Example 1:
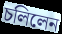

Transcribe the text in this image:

চলিলেন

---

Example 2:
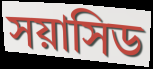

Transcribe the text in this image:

সয়াসিড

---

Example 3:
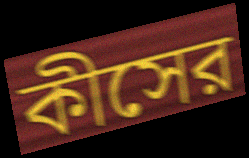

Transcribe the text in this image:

কীসের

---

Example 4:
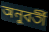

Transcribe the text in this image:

অনুবর্তী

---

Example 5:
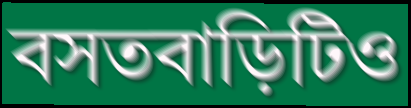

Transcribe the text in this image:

বসতবাড়িটিও